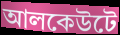
আলকেউটে